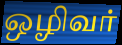
ஒழிவர்